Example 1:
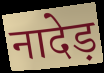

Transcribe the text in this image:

नादेड़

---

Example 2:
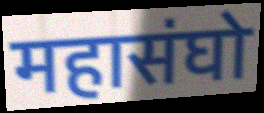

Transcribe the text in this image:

महासंघो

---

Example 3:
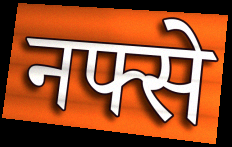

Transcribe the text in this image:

नफ्से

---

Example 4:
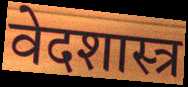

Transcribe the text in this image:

वेदशास्त्र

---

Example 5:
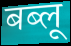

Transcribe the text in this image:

बब्लू